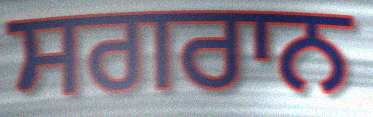
ਸਗਰਾਨ